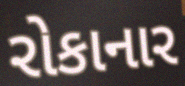
રોકાનાર